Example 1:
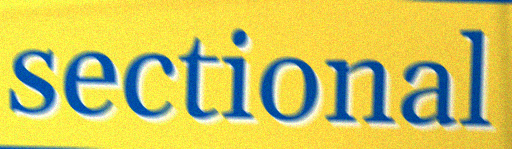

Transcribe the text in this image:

sectional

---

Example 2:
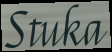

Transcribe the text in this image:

Stuka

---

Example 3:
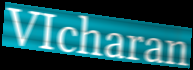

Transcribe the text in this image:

VIcharan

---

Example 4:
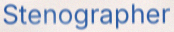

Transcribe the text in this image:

Stenographer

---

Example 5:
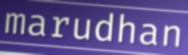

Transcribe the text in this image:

marudhan